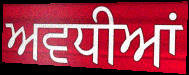
ਅਵਧੀਆਂ